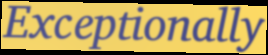
Exceptionally